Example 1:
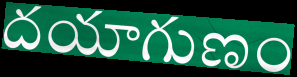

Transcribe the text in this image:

దయాగుణం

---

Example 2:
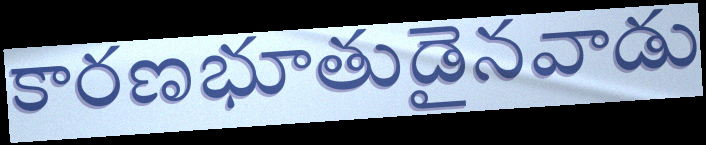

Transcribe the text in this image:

కారణభూతుడైనవాడు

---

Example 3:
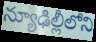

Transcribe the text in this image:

న్యూఢిల్లీలోని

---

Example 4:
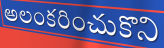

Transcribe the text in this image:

అలంకరించుకొని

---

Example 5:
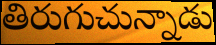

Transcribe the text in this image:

తిరుగుచున్నాడు